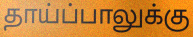
தாய்ப்பாலுக்கு